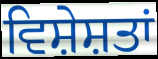
ਵਿਸ਼ੇਸ਼ਤਾਂ